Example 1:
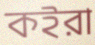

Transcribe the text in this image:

কইরা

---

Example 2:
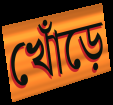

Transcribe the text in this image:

খোঁড়ে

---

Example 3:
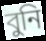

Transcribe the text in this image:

বুনি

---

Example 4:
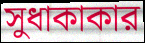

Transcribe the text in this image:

সুধাকাকার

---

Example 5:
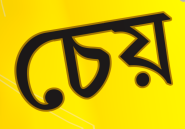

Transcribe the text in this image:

চেয়